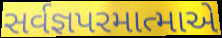
સર્વજ્ઞપરમાત્માએ